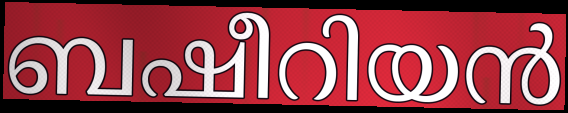
ബഷീറിയൻ